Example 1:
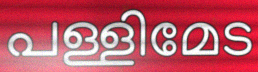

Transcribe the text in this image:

പള്ളിമേട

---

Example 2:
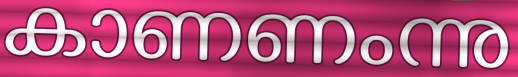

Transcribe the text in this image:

കാണണംന്നു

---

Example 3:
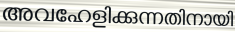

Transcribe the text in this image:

അവഹേളിക്കുന്നതിനായി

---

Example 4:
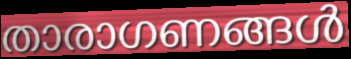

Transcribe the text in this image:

താരാഗണങ്ങൾ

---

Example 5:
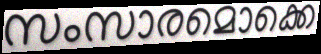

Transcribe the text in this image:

സംസാരമൊക്കെ